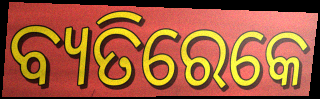
ବ୍ୟତିରେକେ